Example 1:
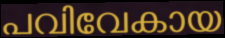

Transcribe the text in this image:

പവിവേകായ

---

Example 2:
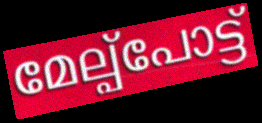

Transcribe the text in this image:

മേല്പ്പോട്ട്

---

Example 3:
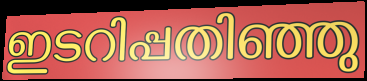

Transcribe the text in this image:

ഇടറിപ്പതിഞ്ഞു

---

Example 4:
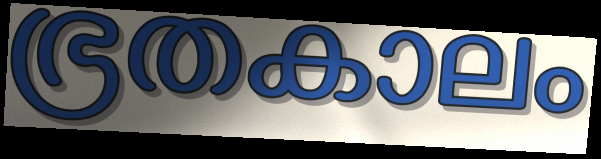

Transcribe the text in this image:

ഭ്രതകാലം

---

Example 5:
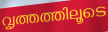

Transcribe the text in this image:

വൃത്തത്തിലൂടെ